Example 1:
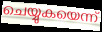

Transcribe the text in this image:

ചെയ്യുകയെന്ന്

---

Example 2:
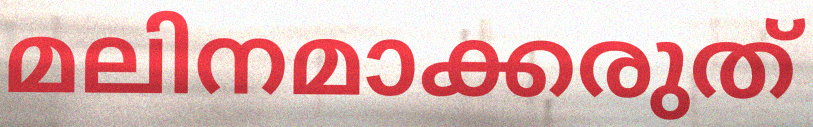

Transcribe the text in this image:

മലിനമാക്കരുത്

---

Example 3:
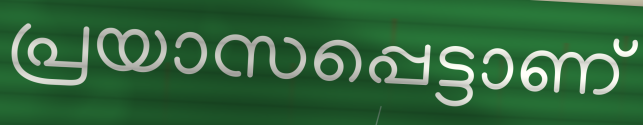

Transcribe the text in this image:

പ്രയാസപ്പെട്ടാണ്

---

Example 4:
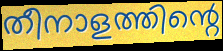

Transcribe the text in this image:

തീനാളത്തിന്റെ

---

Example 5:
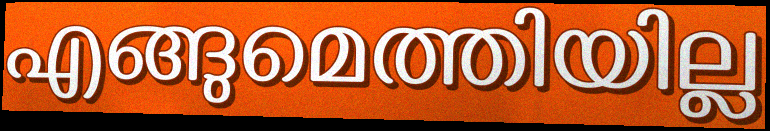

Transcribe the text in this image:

എങ്ങുമെത്തിയില്ല